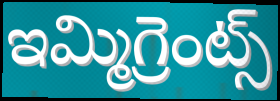
ఇమ్మిగ్రెంట్స్